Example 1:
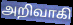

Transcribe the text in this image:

அறிவாகி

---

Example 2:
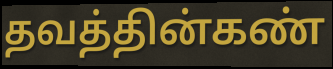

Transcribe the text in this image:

தவத்தின்கண்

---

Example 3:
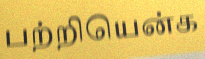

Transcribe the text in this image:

பற்றியென்க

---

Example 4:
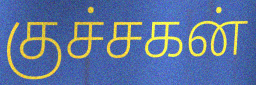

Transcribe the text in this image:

குச்சகன்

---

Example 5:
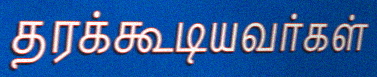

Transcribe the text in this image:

தரக்கூடியவர்கள்